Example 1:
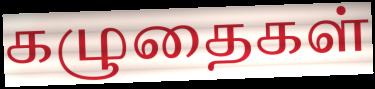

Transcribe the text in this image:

கழுதைகள்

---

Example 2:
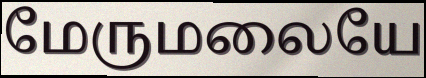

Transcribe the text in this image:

மேருமலையே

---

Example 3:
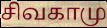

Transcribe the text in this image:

சிவகாமு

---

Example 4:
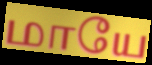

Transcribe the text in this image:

மாயே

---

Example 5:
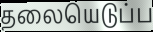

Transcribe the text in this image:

தலையெடுப்ப